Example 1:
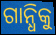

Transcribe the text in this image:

ଗାନ୍ଧିକୁ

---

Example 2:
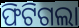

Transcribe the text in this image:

ଫିଟିଗଲା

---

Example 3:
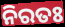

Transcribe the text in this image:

ନିରତଃ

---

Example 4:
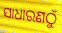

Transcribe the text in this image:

ସାଧାରଣଠୁଁ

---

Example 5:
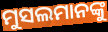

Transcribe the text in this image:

ମୁସଲମାନଙ୍କୁ